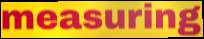
measuring